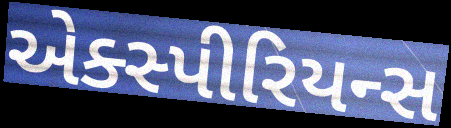
એક્સ્પીરિયન્સ